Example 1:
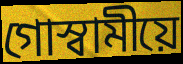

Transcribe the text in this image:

গোস্বামীয়ে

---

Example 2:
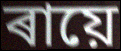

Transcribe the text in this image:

ৰায়ে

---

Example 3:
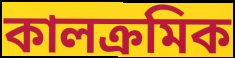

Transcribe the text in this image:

কালক্ৰমিক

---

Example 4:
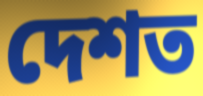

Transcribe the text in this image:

দেশত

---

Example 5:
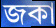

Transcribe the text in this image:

জকা